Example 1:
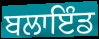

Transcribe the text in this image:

ਬਲਾਇੰਡ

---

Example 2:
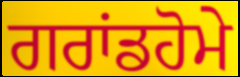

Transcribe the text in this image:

ਗਰਾਂਡਹੋਮੇ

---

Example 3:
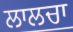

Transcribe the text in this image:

ਲਾਲਚਾ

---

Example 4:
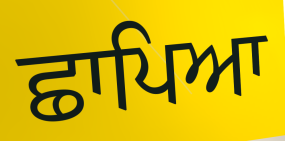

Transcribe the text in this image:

ਛਾਪਿਆ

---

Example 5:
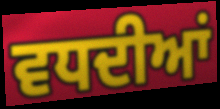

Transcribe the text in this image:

ਵਧਦੀਆਂ